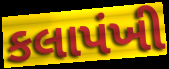
કલાપંખી